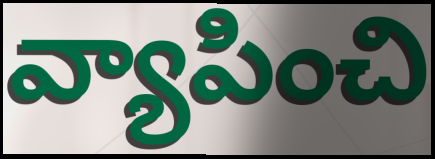
వ్యాపించి